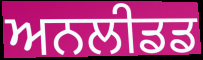
ਅਨਲੀਡਡ